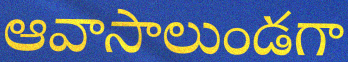
ఆవాసాలుండగా